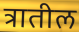
त्रातील